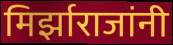
मिर्झाराजांनी